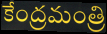
కేంద్రమంత్రి